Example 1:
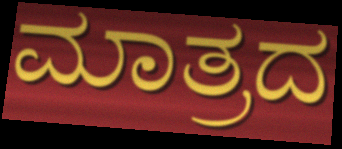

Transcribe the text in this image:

ಮಾತ್ರದ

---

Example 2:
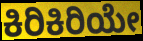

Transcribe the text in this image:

ಕಿರಿಕಿರಿಯೇ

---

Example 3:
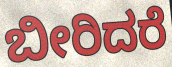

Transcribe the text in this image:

ಬೀರಿದರೆ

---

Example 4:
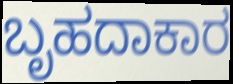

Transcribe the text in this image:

ಬೃಹದಾಕಾರ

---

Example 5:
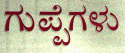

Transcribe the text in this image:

ಗುಪ್ಪೆಗಳು